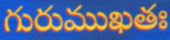
గురుముఖతః